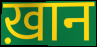
ख़ान